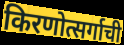
किरणोत्सर्गाची